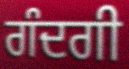
ਗੰਦਗੀ